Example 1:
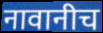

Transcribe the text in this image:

नावानीच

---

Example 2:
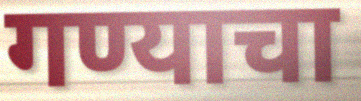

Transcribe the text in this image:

गण्याचा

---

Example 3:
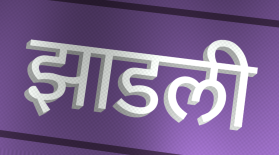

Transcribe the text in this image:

झाडली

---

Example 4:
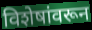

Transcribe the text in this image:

विशेषांवरून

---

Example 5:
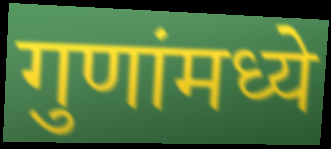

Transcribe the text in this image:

गुणांमध्ये